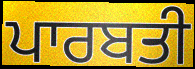
ਪਾਰਬਤੀ